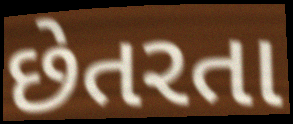
છેતરતા